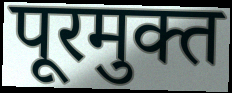
पूरमुक्त